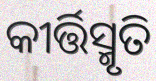
କୀର୍ତ୍ତିସ୍ମୃତି